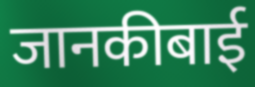
जानकीबाई